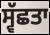
ਸ੍ਵੱਛਤਾ